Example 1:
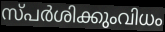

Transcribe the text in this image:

സ്പർശിക്കുംവിധം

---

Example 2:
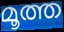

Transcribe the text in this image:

മൂത്ത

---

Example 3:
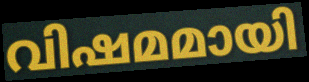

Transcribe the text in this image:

വിഷമമായി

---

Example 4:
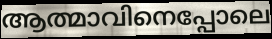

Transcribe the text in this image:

ആത്മാവിനെപ്പോലെ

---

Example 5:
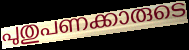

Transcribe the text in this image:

പുതുപണക്കാരുടെ